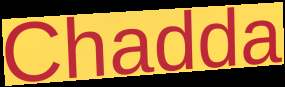
Chadda